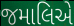
જમાલિએ